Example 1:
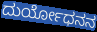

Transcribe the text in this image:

ದುರ್ಯೋಧನನ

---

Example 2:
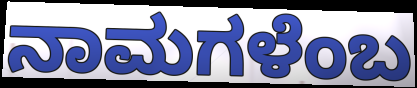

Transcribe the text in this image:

ನಾಮಗಳೆಂಬ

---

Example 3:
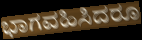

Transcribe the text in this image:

ಭಾಗವಹಿಸಿದರೂ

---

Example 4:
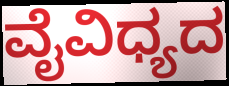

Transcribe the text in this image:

ವೈವಿಧ್ಯದ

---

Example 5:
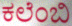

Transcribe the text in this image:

ಕಲೆಂಬಿ